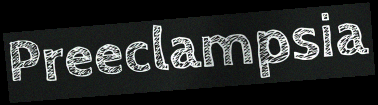
Preeclampsia